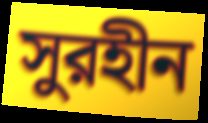
সুরহীন